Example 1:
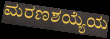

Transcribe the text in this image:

ಮರಣಶಯ್ಯೆಯ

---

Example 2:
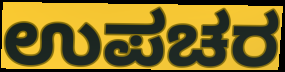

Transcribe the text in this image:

ಉಪಚರ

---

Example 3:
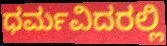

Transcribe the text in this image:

ಧರ್ಮವಿದರಲ್ಲಿ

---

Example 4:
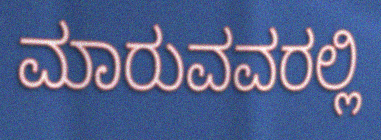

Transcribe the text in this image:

ಮಾರುವವರಲ್ಲಿ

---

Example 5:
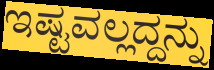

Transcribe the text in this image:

ಇಷ್ಟವಲ್ಲದ್ದನ್ನು